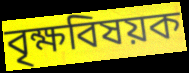
বৃক্ষবিষয়ক